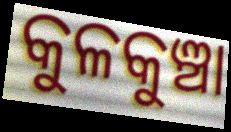
କୁଳକୁଞ୍ଚା